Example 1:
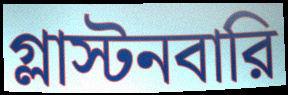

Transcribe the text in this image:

গ্লাস্টনবারি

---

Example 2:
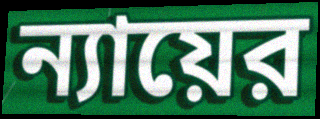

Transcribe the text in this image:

ন্যায়ের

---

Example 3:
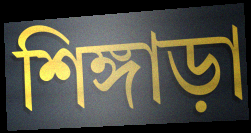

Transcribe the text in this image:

শিঙ্গাড়া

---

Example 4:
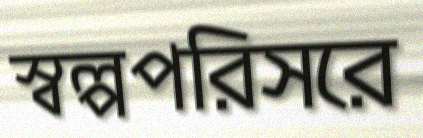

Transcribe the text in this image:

স্বল্পপরিসরে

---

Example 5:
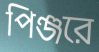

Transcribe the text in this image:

পিঞ্জরে